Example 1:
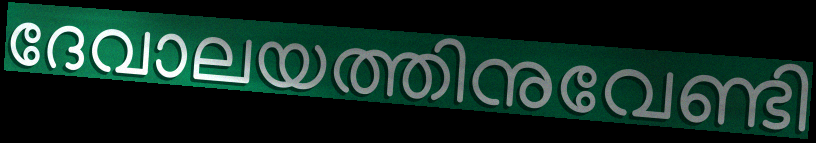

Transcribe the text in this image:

ദേവാലയത്തിനുവേണ്ടി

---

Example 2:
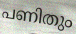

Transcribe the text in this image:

പണിതും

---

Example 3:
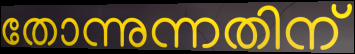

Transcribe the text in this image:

തോന്നുന്നതിന്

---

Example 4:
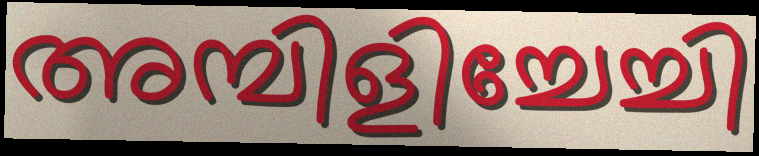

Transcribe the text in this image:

അമ്പിളിച്ചേച്ചി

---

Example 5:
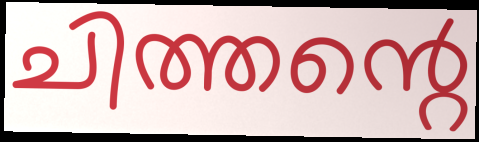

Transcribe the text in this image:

ചിത്തന്റെ